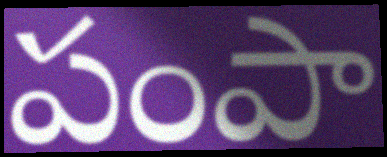
పంపా